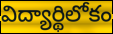
విద్యార్థిలోకం